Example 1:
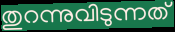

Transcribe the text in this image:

തുറന്നുവിടുന്നത്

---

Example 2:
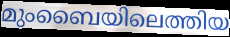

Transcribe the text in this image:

മുംബൈയിലെത്തിയ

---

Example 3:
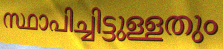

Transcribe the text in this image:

സ്ഥാപിച്ചിട്ടുള്ളതും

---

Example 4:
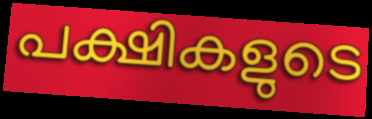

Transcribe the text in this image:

പക്ഷികളുടെ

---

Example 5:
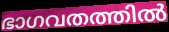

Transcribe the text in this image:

ഭാഗവതത്തിൽ